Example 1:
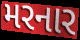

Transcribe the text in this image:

મરનાર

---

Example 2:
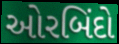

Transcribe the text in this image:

ઓરબિંદો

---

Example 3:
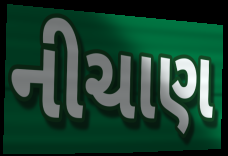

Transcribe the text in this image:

નીચાણ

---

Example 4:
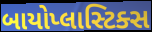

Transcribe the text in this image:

બાયોપ્લાસ્ટિક્સ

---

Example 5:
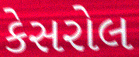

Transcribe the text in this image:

કેસરોલ